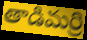
తాడిమర్రి